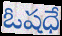
ఓషధే